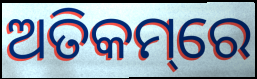
ଅତିକମ୍‌ରେ